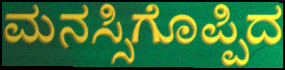
ಮನಸ್ಸಿಗೊಪ್ಪಿದ